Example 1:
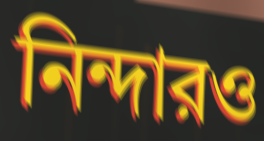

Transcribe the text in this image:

নিন্দারও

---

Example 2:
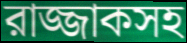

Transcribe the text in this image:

রাজ্জাকসহ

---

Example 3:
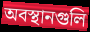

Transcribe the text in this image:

অবস্থানগুলি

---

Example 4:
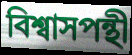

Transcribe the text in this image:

বিশ্বাসপন্থী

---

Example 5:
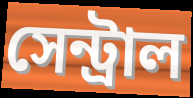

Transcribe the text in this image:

সেন্ট্রাল